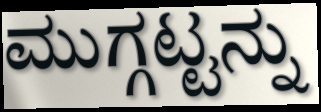
ಮುಗ್ಗಟ್ಟನ್ನು